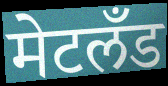
मेटलँड